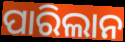
ପାରିଲାନ